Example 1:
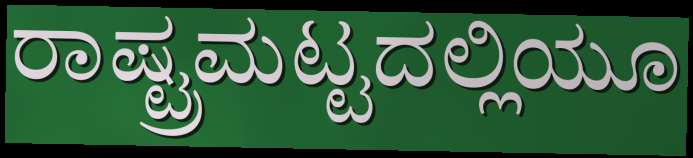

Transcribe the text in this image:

ರಾಷ್ಟ್ರಮಟ್ಟದಲ್ಲಿಯೂ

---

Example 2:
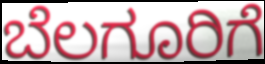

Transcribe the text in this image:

ಬೆಲಗೂರಿಗೆ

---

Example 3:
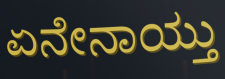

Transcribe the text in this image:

ಏನೇನಾಯ್ತು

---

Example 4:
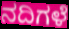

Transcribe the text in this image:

ನದಿಗಳೆ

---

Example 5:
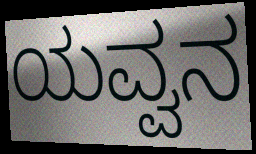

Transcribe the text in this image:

ಯವ್ವನ